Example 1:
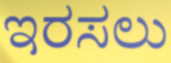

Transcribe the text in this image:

ಇರಸಲು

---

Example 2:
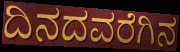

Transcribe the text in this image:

ದಿನದವರೆಗಿನ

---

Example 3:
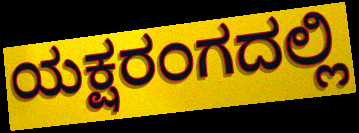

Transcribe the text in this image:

ಯಕ್ಷರಂಗದಲ್ಲಿ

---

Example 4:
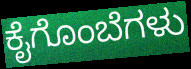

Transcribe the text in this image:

ಕೈಗೊಂಬೆಗಳು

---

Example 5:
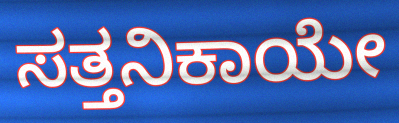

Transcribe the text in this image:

ಸತ್ತನಿಕಾಯೇ